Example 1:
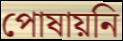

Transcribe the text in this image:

পোষায়নি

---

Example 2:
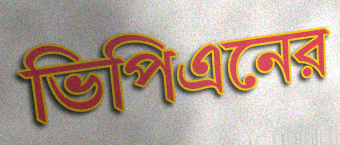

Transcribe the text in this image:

ভিপিএনের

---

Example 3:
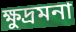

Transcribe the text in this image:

ক্ষুদ্রমনা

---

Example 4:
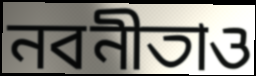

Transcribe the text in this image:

নবনীতাও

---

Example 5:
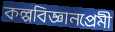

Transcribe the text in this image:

কল্পবিজ্ঞানপ্রেমী